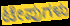
ಟೇಪುಗಳು